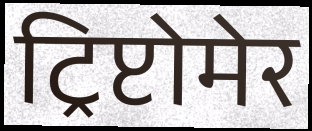
ट्रिप्टोमेर